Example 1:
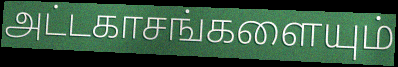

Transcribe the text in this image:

அட்டகாசங்களையும்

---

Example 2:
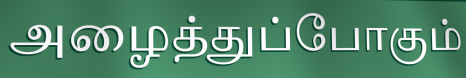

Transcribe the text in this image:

அழைத்துப்போகும்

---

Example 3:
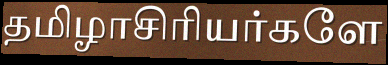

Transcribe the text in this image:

தமிழாசிரியர்களே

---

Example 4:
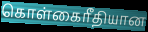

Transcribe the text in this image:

கொள்கைரீதியான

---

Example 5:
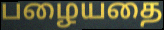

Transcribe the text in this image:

பழையதை